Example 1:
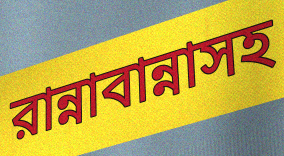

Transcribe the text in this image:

রান্নাবান্নাসহ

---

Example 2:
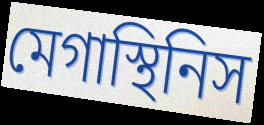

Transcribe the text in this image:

মেগাস্থিনিস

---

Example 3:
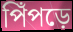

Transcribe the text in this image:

পিঁপড়ে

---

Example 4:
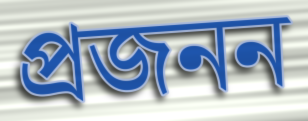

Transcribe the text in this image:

প্রজনন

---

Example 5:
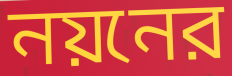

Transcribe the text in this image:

নয়নের